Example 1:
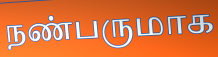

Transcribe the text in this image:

நண்பருமாக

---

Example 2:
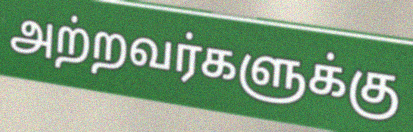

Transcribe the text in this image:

அற்றவர்களுக்கு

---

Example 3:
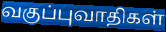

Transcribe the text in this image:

வகுப்புவாதிகள்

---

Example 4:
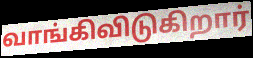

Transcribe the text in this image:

வாங்கிவிடுகிறார்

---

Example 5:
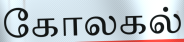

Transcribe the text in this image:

கோலகல்